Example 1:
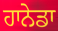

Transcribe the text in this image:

ਹਾਨੇਡਾ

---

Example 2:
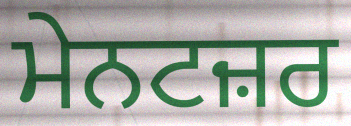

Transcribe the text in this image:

ਮੇਨਟਜ਼ਰ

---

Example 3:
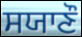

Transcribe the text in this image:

ਸਯਾਣੌ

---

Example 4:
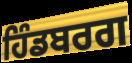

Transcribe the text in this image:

ਹਿੰਡਬਰਗ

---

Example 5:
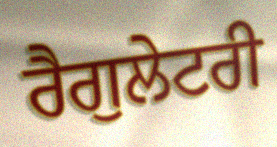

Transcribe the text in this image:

ਰੈਗੁਲੇਟਰੀ